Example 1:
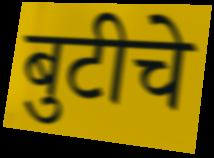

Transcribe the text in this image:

बुटीचे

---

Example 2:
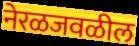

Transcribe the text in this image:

नेरळजवळील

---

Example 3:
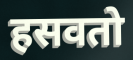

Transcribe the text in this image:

हसवतो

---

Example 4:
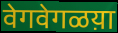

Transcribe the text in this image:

वेगवेगळय़ा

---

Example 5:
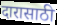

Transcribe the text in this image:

दारासाठी